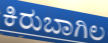
ಕಿರುಬಾಗಿಲ